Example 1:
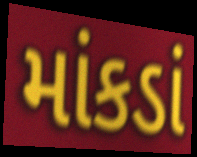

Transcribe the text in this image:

માંકડાં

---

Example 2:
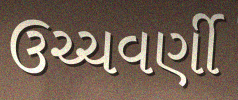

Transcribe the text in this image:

ઉચ્ચવર્ણી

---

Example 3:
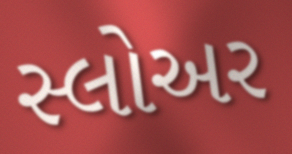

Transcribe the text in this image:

સ્લોઅર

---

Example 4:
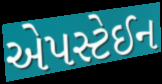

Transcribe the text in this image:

એપસ્ટેઈન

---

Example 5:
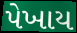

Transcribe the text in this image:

પેખાય